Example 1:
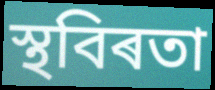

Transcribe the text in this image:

স্থবিৰতা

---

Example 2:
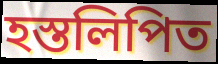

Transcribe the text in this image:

হস্তলিপিত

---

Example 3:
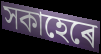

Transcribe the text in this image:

সকাহেৰে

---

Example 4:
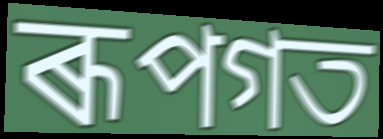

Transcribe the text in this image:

ৰূপগত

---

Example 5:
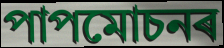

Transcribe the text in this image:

পাপমোচনৰ